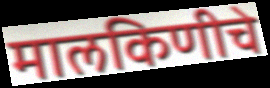
मालकिणीचे